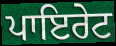
ਪਾਇਰੇਟ